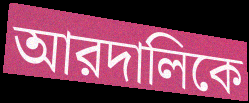
আরদালিকে